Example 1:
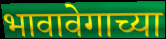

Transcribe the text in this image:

भावावेगाच्या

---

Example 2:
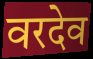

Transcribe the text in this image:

वरदेव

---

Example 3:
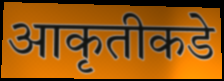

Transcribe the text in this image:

आकृतीकडे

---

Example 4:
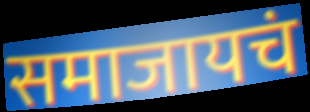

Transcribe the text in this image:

समाजायचं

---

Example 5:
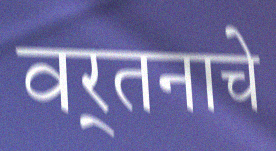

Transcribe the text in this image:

वर्तनाचे